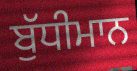
ਬੁੱਧੀਮਾਨ